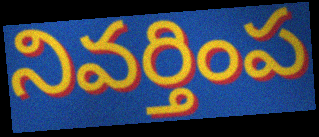
నివర్తింప